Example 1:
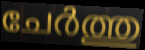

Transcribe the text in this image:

ചേർത്തു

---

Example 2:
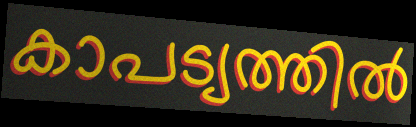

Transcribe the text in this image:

കാപട്യത്തിൽ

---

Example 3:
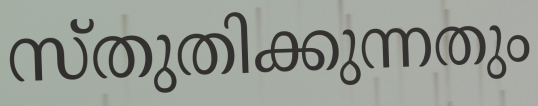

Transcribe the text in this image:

സ്തുതിക്കുന്നതും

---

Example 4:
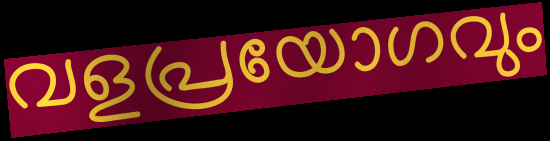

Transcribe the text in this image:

വളപ്രയോഗവും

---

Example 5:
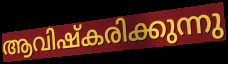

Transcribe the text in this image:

ആവിഷ്കരിക്കുന്നു